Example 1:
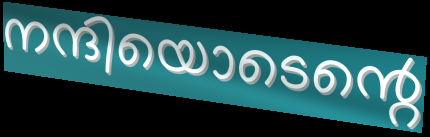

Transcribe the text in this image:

നന്ദിയൊടെന്റെ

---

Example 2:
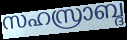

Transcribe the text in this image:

സഹസ്രാബ്ദ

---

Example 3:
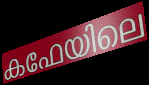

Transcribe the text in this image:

കഫേയിലെ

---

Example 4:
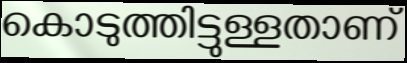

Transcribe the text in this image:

കൊടുത്തിട്ടുള്ളതാണ്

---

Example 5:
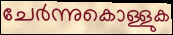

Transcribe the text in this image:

ചേർന്നുകൊള്ളുക